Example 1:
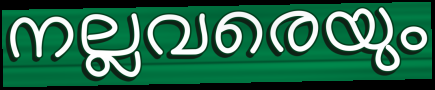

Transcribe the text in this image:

നല്ലവരെയും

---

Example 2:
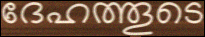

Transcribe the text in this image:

ദേഹത്തൂടെ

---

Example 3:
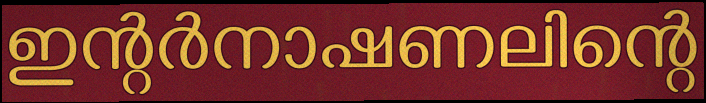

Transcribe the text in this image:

ഇന്റർനാഷണലിന്റെ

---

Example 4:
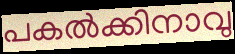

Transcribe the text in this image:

പകൽക്കിനാവു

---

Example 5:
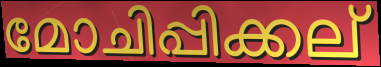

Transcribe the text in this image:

മോചിപ്പിക്കല്